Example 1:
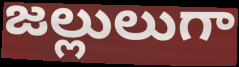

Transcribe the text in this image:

జల్లులుగా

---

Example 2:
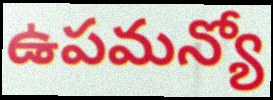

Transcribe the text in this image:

ఉపమన్యో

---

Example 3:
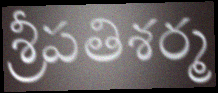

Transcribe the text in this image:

శ్రీపతిశర్మ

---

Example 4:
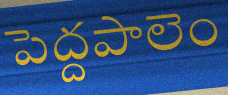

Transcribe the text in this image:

పెద్దపాలెం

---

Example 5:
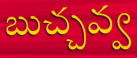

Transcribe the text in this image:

బుచ్చవ్వ